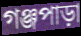
গঞ্জপাড়া